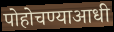
पोहोचण्याआधी